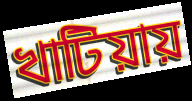
খাটিয়ায়